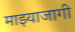
माझ्याजागी